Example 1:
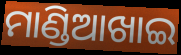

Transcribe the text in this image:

ମାଣ୍ଡିଆଖାଇ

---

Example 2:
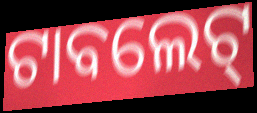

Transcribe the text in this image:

ଟାବଲେଟ୍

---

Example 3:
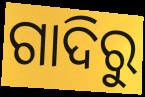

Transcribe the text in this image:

ଗାଦିରୁ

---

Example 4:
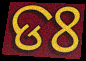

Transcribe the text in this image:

ଡଃ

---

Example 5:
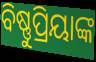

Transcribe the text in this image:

ବିଷ୍ଣୁପ୍ରିୟାଙ୍କ